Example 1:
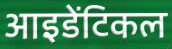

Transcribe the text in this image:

आइडेंटिकल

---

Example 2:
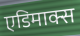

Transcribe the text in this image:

एडिमाक्स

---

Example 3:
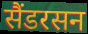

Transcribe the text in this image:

सैंडरसन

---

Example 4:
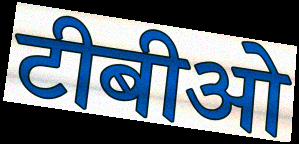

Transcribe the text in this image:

टीबीओ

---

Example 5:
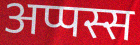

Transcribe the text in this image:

अप्पस्स